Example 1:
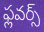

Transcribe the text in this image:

ఫ్లవర్స్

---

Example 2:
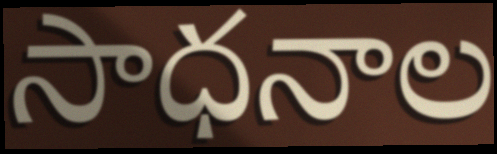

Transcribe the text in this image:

సాధనాల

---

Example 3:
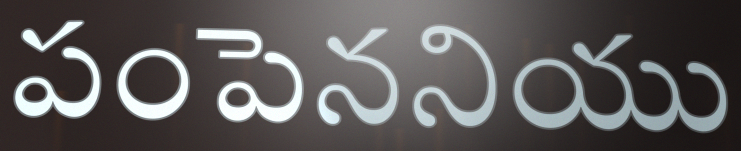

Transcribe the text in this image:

పంపెననియు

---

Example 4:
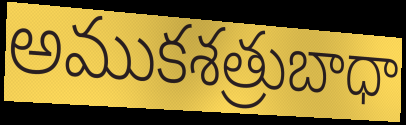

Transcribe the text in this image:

అముకశత్రుబాధా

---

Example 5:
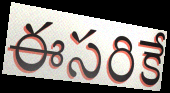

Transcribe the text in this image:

ఈసరికే